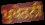
ਪੁਖੇਰਨੀ